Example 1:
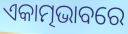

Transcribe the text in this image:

ଏକାତ୍ମଭାବରେ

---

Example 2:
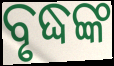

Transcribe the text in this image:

ବୃଦ୍ଧଙ୍କ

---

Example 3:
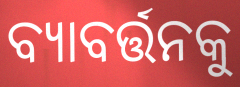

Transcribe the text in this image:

ବ୍ୟାବର୍ତ୍ତନକୁ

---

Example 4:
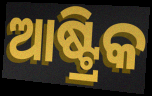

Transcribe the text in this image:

ଆଷ୍ଟ୍ରିକ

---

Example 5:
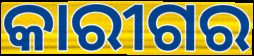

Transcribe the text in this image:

କାରୀଗର